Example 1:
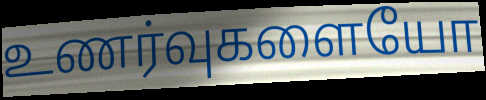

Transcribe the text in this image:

உணர்வுகளையோ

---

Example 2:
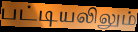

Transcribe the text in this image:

பட்டியலிலும்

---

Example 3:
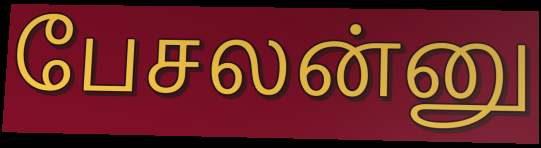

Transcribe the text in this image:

பேசலன்னு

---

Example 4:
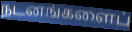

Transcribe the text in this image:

நடனங்களைப்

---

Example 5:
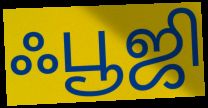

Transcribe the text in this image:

ஃபூஜி